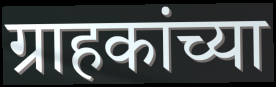
ग्राहकांच्या